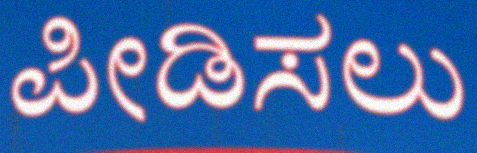
ಪೀಡಿಸಲು